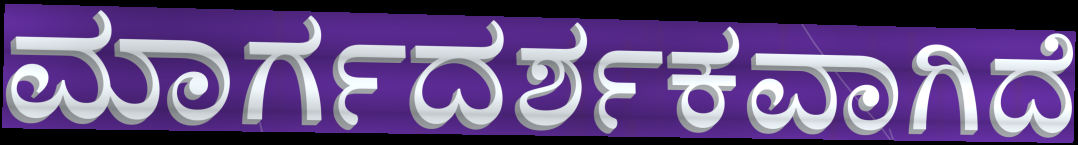
ಮಾರ್ಗದರ್ಶಕವಾಗಿದೆ